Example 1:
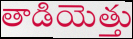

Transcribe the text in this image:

తాడియెత్తు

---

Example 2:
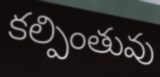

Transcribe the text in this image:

కల్పింతువు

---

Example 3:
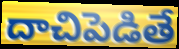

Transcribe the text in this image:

దాచిపెడితే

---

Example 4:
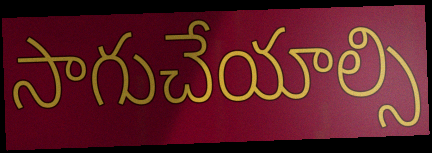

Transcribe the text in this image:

సాగుచేయాల్సి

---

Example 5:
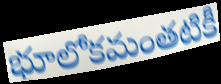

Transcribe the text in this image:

భూలోకమంతటికీ